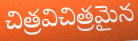
చిత్రవిచిత్రమైన